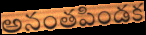
అనంతపిండక